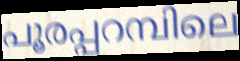
പൂരപ്പറമ്പിലെ